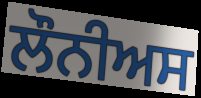
ਲੌਨੀਅਸ